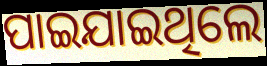
ପାଇଯାଇଥିଲେ